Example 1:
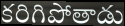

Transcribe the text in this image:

కరిగిపోతాడు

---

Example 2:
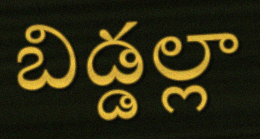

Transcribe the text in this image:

బిడ్డల్లా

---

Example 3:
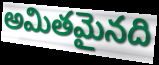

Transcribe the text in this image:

అమితమైనది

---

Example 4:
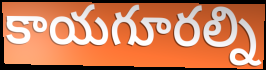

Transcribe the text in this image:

కాయగూరల్ని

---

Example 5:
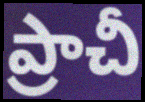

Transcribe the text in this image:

ప్రాచీ